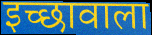
इच्छावाला